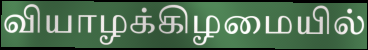
வியாழக்கிழமையில்